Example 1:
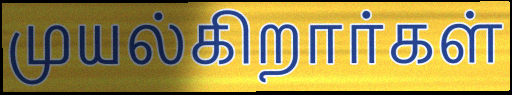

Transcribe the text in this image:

முயல்கிறார்கள்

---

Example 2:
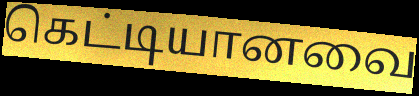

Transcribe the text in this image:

கெட்டியானவை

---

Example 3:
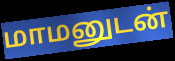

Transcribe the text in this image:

மாமனுடன்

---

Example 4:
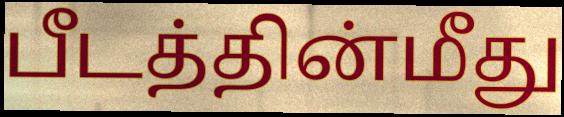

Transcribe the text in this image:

பீடத்தின்மீது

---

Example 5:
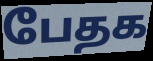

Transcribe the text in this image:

பேதக